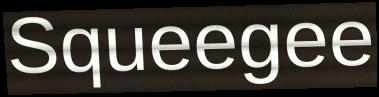
Squeegee